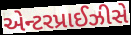
એન્ટરપ્રાઈઝીસે